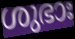
ശുഭാഃ